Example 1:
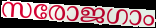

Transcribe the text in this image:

സരോജഗാം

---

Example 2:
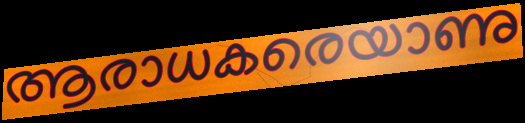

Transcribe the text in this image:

ആരാധകരെയാണു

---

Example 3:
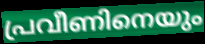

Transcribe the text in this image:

പ്രവീണിനെയും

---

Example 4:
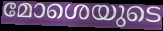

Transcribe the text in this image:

മോശെയുടെ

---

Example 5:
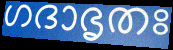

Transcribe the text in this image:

ഗദാഭൃതഃ